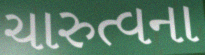
ચારુત્વના